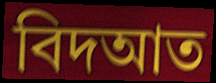
বিদআত